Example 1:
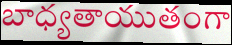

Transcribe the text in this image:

బాధ్యతాయుతంగా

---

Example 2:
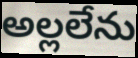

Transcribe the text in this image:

అల్లలేను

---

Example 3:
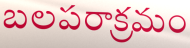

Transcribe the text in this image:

బలపరాక్రమం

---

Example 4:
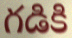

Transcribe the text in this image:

గడికి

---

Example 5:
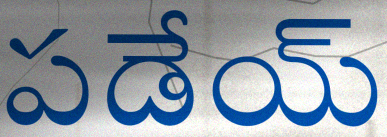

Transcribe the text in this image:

పడేయ్